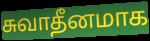
சுவாதீனமாக